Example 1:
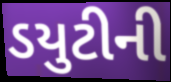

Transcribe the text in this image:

ડયુટીની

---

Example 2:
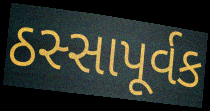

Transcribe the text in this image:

ઠસ્સાપૂર્વક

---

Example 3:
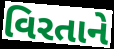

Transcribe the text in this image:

વિરતાને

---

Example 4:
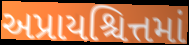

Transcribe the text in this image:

અપ્રાયશ્ચિત્તમાં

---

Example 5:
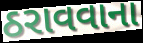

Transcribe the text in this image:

ઠરાવવાના